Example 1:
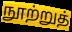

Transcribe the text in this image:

நூற்றுத்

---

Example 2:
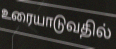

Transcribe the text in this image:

உரையாடுவதில்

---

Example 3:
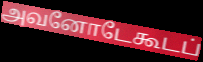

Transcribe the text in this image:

அவனோடேகூடப்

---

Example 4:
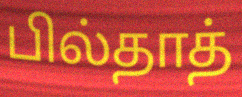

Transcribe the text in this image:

பில்தாத்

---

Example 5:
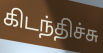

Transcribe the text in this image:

கிடந்திச்சு